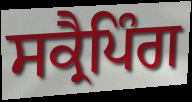
ਸਕ੍ਰੈਪਿੰਗ